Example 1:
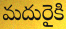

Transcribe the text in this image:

మదురైకి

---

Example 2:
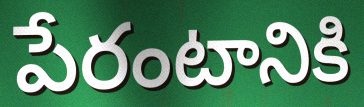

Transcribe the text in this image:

పేరంటానికి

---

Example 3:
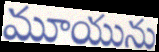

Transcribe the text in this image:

మూయును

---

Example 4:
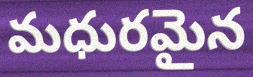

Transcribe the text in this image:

మధురమైన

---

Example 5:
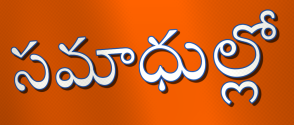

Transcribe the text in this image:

సమాధుల్లో